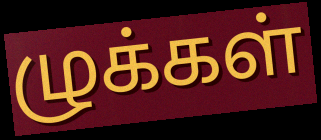
ழுக்கள்